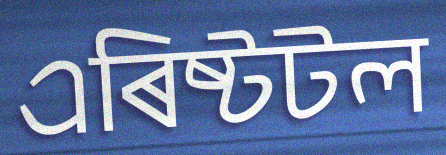
এৰিষ্টটল